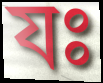
যঃ